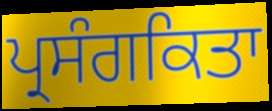
ਪ੍ਰਸੰਗਕਿਤਾ